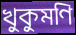
খুকুমণি